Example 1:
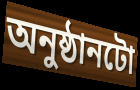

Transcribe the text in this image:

অনুষ্ঠানটো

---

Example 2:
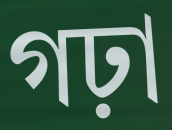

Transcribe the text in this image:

গঢ়া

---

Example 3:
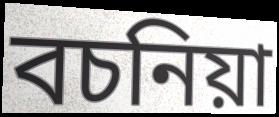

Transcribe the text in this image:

বচনিয়া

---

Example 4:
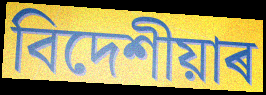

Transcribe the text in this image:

বিদেশীয়াৰ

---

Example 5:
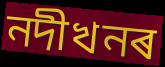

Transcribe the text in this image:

নদীখনৰ